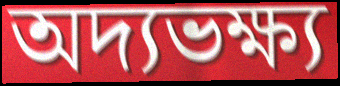
অদ্যভক্ষ্য